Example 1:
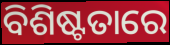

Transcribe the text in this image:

ବିଶିଷ୍ଟତାରେ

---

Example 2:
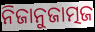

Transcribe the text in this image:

ନିଜାନୁଜାତ୍ମଜ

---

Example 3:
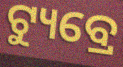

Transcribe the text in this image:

ଟ୍ୟୁବ୍ରେ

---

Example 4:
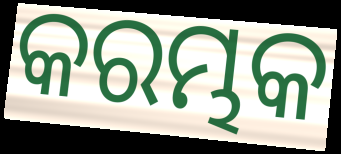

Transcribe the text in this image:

କରମ୍ଭକ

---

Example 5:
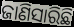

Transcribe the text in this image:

ଜାଣିସାରିଛି